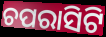
ଚପରାସିଟି